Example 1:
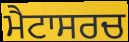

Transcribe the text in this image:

ਮੈਟਾਸਰਚ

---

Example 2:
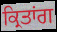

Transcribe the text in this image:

ਕ੍ਰਿਤਾਂਗ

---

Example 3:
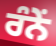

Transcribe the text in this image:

ਰੰਨੇਂ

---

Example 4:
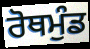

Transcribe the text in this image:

ਰੋਥਮੁੰਡ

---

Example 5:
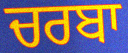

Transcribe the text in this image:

ਚਰਬਾ